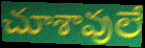
చూశావులే